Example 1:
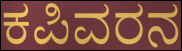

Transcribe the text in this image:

ಕಪಿವರನ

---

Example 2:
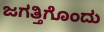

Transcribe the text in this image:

ಜಗತ್ತಿಗೊಂದು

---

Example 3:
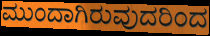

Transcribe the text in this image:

ಮುಂದಾಗಿರುವುದರಿಂದ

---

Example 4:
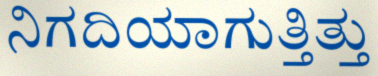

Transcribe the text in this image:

ನಿಗದಿಯಾಗುತ್ತಿತ್ತು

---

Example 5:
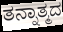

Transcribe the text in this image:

ತನ್ನಾತ್ಮದ